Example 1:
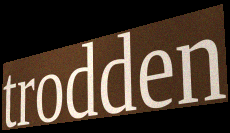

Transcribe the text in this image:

trodden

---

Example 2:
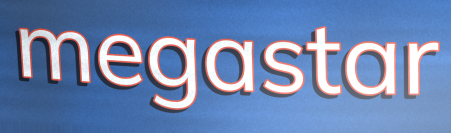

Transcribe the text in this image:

megastar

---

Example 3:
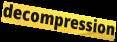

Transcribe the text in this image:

decompression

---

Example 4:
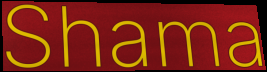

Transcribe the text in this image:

Shama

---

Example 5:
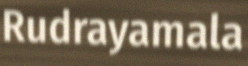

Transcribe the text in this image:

Rudrayamala